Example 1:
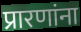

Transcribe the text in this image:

प्रारणांना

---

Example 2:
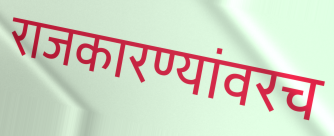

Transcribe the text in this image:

राजकारण्यांवरच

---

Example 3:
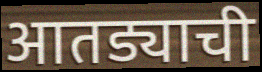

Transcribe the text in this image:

आतड्याची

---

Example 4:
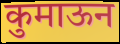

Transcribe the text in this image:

कुमाऊन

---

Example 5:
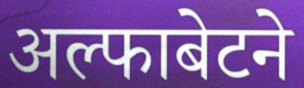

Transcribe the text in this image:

अल्फाबेटने